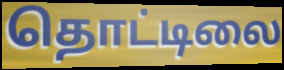
தொட்டிலை